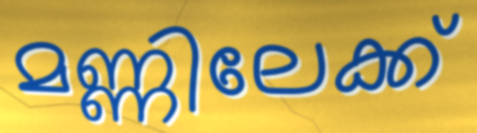
മണ്ണിലേക്ക്